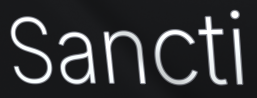
Sancti